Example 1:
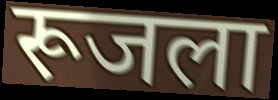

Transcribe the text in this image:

रूजला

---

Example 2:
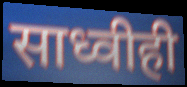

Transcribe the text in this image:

साध्वीही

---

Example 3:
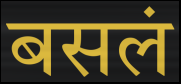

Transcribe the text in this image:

बसलं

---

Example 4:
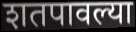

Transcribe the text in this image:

शतपावल्या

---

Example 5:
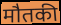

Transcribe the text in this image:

मौतकी